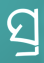
ସ୍ର